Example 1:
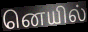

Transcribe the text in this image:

னெயில்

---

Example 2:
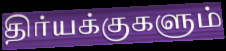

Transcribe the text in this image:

திர்யக்குகளும்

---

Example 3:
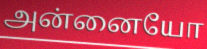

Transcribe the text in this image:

அன்னையோ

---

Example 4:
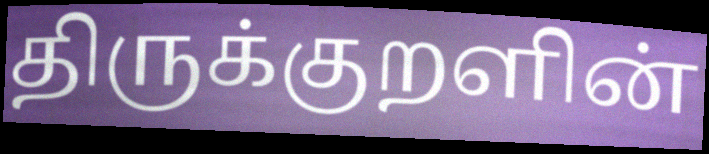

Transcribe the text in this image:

திருக்குறளின்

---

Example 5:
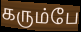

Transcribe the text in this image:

கரும்பே